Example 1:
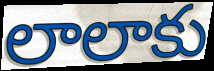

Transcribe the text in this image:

లాలాకు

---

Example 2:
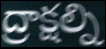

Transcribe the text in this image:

ద్రాక్షల్ని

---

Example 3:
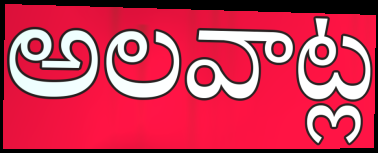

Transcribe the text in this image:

అలవాట్ల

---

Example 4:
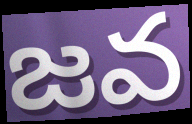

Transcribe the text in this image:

జవ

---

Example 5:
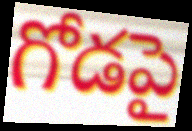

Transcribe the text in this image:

గోడపై